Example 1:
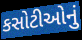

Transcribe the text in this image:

કસોટીઓનું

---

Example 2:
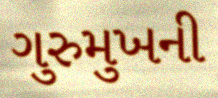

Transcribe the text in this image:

ગુરુમુખની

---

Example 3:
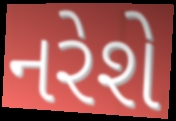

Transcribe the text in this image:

નરેશે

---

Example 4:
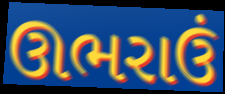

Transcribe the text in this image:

ઊભરાઉં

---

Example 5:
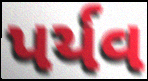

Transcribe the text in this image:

પર્યવ